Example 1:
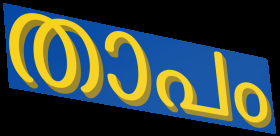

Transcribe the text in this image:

താപം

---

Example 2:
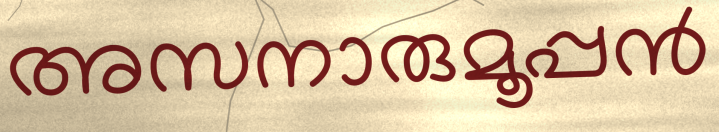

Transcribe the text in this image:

അസനാരുമൂപ്പൻ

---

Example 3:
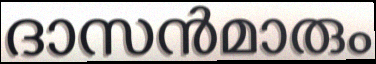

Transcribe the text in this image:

ദാസൻമാരും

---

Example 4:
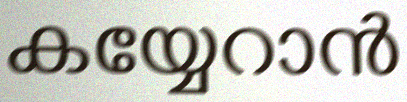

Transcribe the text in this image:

കയ്യേറാൻ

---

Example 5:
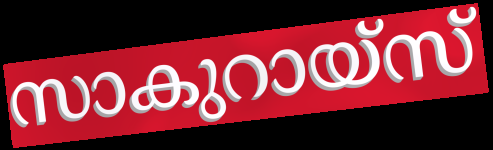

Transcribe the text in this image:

സാകുറായ്സ്